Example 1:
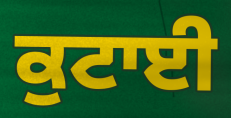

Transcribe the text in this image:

ਕੁਟਾਈ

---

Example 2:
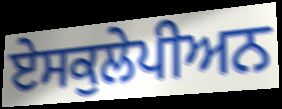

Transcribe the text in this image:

ਏਸਕੁਲੇਪੀਅਨ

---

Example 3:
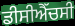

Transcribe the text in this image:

ਡੀਸੀਐੱਚਸੀ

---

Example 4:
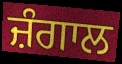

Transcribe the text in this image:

ਜ਼ੰਗਾਲ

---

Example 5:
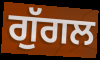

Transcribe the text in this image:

ਗੁੱਗਲ